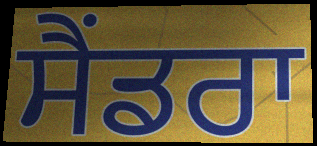
ਸੈਂਡਰਾ